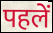
पहलें